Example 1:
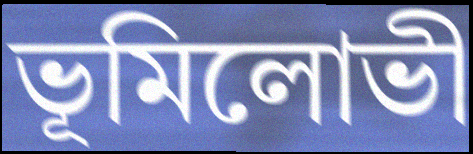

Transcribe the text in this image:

ভূমিলোভী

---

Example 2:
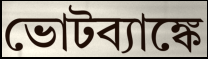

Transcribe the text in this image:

ভোটব্যাঙ্কে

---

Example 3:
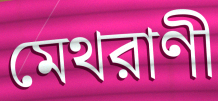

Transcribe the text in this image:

মেথরাণী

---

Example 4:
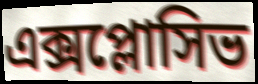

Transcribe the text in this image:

এক্সপ্লোসিভ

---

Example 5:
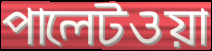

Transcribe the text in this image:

পালেটওয়া